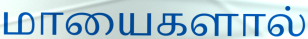
மாயைகளால்